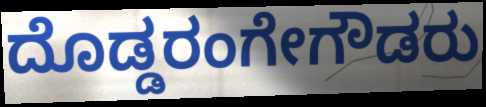
ದೊಡ್ಡರಂಗೇಗೌಡರು